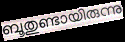
ബൂതുണ്ടായിരുന്നു